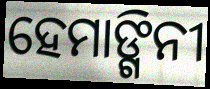
ହେମାଙ୍ଗିନୀ